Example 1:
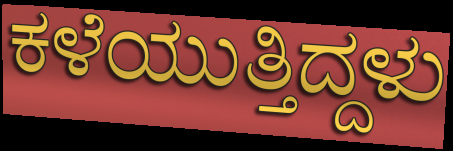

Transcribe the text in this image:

ಕಳೆಯುತ್ತಿದ್ದಳು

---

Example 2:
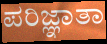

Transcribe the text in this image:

ಪರಿಜ್ಞಾತಾ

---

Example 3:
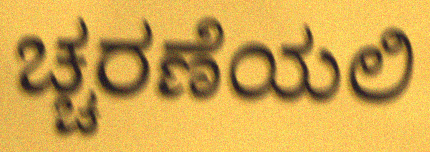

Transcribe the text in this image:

ಚ್ಚರಣೆಯಲಿ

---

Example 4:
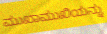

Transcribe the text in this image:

ಮುಖಾಮುಖಿಯನ್ನು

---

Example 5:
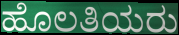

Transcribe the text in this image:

ಹೊಲತಿಯರು